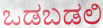
ಒಡಬಡಲಿ